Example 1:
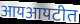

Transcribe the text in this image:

आयआयटीत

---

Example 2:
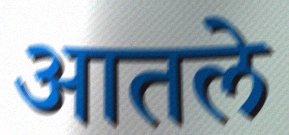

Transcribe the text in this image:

आतले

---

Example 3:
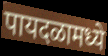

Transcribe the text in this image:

पायदळामध्ये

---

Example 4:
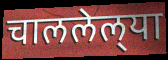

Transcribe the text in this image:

चाललेल्या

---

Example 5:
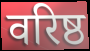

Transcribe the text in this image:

वरिष्ठ